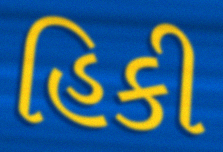
હિકી